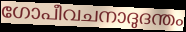
ഗോപീവചനാദുദന്തം